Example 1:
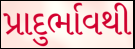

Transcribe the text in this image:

પ્રાદુર્ભાવથી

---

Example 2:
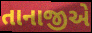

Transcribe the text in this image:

તાનાજીએ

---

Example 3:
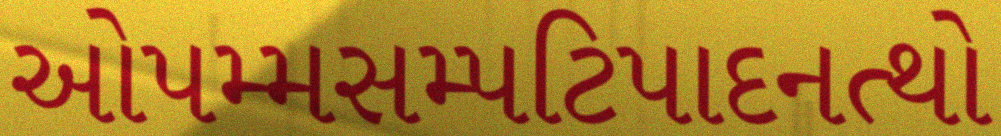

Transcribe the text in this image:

ઓપમ્મસમ્પટિપાદનત્થો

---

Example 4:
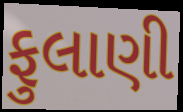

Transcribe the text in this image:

ફુલાણી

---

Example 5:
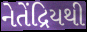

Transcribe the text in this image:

નેતેંદ્રિયથી